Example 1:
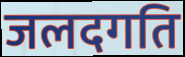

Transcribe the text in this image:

जलदगति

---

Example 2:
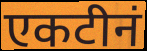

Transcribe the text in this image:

एकटीनं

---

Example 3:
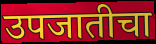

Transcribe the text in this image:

उपजातीचा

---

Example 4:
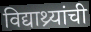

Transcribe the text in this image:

विद्याथ्र्यांची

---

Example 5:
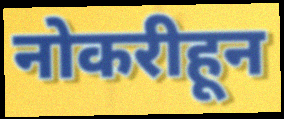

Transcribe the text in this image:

नोकरीहून